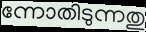
ന്നോതിടുന്നതു